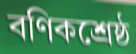
বণিকশ্রেষ্ঠ